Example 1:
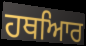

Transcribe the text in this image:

ਹਥਆਿਰ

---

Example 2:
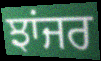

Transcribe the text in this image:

ਝਾਂਜਰ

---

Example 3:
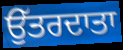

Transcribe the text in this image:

ਉੱਤਰਦਾਤਾ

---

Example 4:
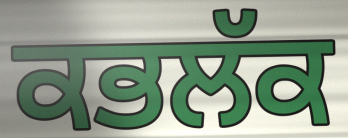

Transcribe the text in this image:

ਕਭਲੱਕ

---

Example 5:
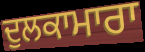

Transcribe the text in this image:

ਦੁਲਕਾਮਾਰਾ